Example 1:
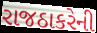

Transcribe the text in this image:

રાજઠાકરેની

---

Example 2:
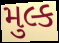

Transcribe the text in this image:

મુલ્ક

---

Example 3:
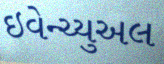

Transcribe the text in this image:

ઇવેન્ચ્યુઅલ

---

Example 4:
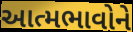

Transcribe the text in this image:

આત્મભાવોને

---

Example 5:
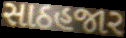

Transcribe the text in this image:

સાઠહજાર